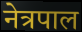
नेत्रपाल